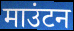
माउंटन